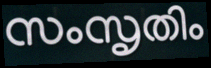
സംസൃതിം